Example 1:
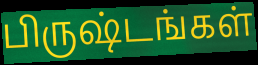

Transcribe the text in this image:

பிருஷ்டங்கள்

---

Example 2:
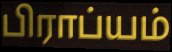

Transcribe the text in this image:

பிராப்யம்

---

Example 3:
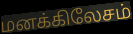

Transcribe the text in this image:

மனக்கிலேசம்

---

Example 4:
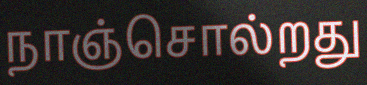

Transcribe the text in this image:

நாஞ்சொல்றது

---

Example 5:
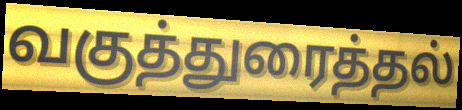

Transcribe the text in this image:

வகுத்துரைத்தல்